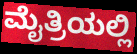
ಮೈತ್ರಿಯಲ್ಲಿ